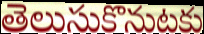
తెలుసుకొనుటకు